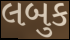
લબુક